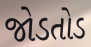
જોડતોડ